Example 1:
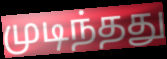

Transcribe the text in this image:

முடிந்தது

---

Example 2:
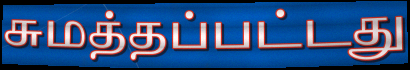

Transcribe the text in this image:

சுமத்தப்பட்டது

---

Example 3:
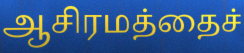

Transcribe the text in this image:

ஆசிரமத்தைச்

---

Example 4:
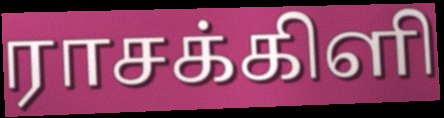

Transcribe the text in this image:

ராசக்கிளி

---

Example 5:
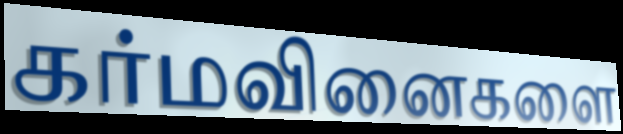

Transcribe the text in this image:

கர்மவினைகளை